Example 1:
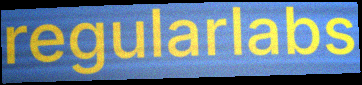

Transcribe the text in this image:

regularlabs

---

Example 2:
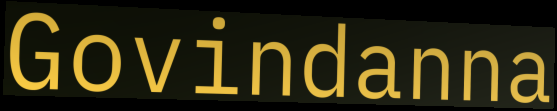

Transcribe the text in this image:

Govindanna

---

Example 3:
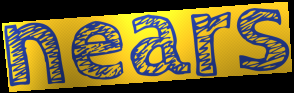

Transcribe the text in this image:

nears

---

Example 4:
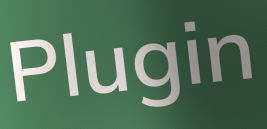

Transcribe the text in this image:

Plugin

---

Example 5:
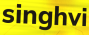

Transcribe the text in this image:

singhvi